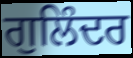
ਗੁਲਿੰਦਰ